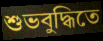
শুভবুদ্ধিতে